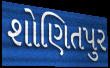
શોણિતપુર